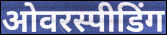
ओवरस्पीडिंग